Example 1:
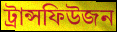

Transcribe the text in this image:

ট্ৰান্সফিউজন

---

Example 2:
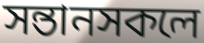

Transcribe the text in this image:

সন্তানসকলে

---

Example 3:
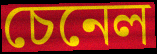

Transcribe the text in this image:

চেনেল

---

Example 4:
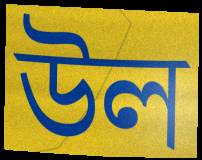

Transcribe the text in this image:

উল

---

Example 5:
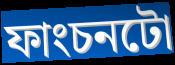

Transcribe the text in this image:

ফাংচনটো